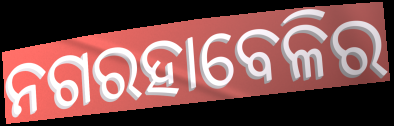
ନଗରହାବେଳିର